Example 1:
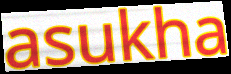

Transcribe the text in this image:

asukha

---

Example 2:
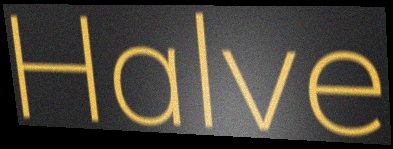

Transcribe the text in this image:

Halve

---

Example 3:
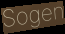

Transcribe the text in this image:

Sogen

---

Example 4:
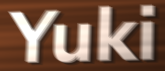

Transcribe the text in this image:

Yuki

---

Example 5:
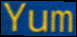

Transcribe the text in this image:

Yum